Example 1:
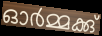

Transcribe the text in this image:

ഓർമ്മക്കു്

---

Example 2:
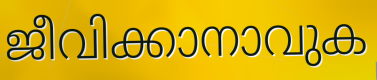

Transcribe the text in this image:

ജീവിക്കാനാവുക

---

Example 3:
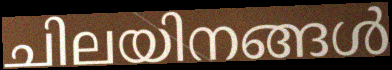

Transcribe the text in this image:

ചിലയിനങ്ങൾ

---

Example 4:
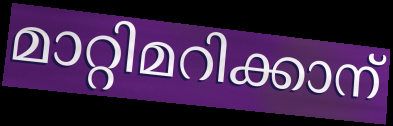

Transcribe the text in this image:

മാറ്റിമറിക്കാന്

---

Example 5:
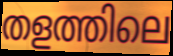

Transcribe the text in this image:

തളത്തിലെ